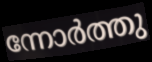
ന്നോർത്തു